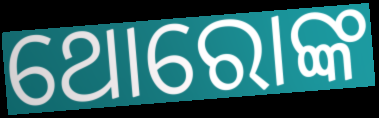
ଥୋରୋଙ୍କ